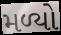
મળ્યો